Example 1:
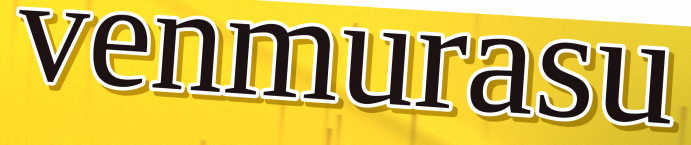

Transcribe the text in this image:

venmurasu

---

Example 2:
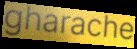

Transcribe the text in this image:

gharache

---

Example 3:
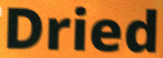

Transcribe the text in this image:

Dried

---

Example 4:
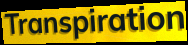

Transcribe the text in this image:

Transpiration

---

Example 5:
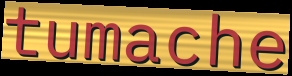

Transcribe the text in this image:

tumache